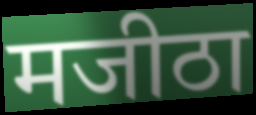
मजीठा